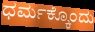
ಧರ್ಮಕ್ಕೊಂದು